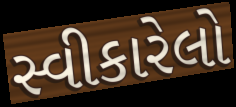
સ્વીકારેલો